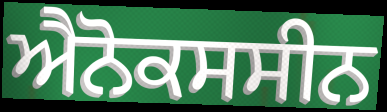
ਐਨੋਕਸਸੀਨ